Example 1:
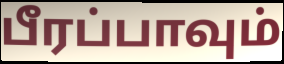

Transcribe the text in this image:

பீரப்பாவும்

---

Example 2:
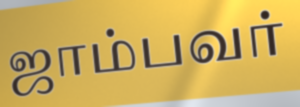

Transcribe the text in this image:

ஜாம்பவர்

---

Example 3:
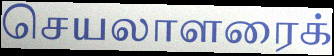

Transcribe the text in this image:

செயலாளரைக்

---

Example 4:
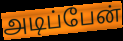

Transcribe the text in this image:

அடிப்பேன்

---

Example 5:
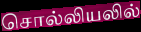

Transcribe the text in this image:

சொல்லியலில்